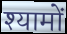
श्यामों